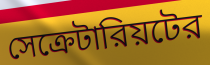
সেক্রেটারিয়টের